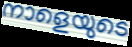
നാളെയുടെ